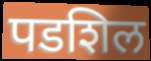
पडशिल